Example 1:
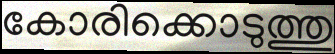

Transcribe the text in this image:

കോരിക്കൊടുത്തു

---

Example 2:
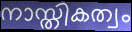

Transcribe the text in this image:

നാസ്തികത്വം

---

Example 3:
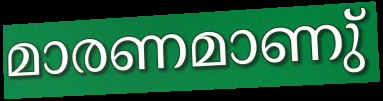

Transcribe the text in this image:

മാരണമാണു്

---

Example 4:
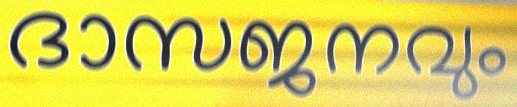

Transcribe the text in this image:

ദാസജനവും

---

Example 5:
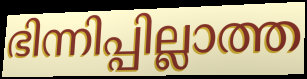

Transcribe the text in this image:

ഭിന്നിപ്പില്ലാത്ത